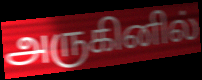
அருகினில்